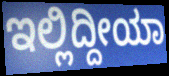
ಇಲ್ಲಿದ್ದೀಯಾ